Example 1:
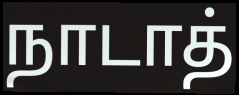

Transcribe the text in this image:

நாடாத்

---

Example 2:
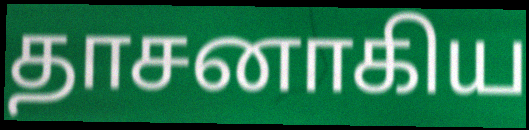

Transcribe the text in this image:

தாசனாகிய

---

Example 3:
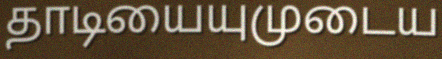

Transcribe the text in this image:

தாடியையுமுடைய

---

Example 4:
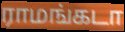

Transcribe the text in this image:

ராமங்கடா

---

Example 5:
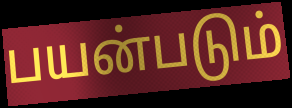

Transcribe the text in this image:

பயன்படும்